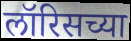
लॉरिसच्या